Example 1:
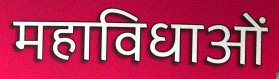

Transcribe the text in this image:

महाविधाओं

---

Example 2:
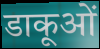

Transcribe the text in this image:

डाकूओं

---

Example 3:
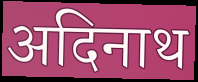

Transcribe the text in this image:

अदिनाथ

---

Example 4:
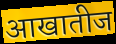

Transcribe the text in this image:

आखातीज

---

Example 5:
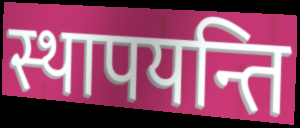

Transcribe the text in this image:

स्थापयन्ति